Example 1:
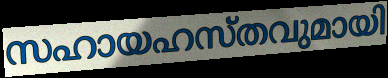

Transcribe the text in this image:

സഹായഹസ്തവുമായി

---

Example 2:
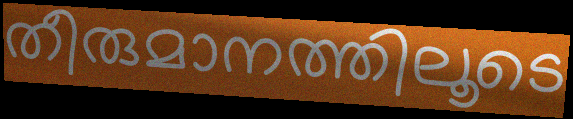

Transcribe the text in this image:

തീരുമാനത്തിലൂടെ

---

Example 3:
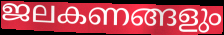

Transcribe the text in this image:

ജലകണങ്ങളും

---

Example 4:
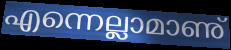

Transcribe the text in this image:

എന്നെല്ലാമാണു്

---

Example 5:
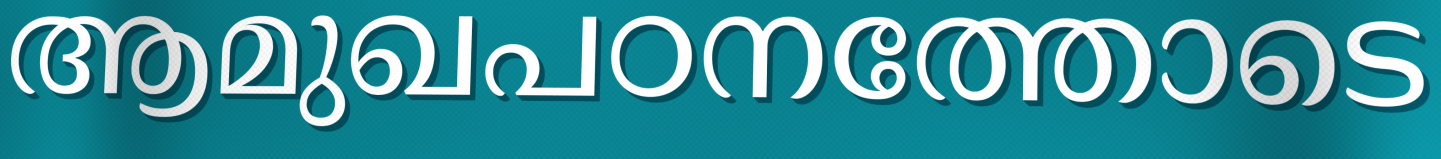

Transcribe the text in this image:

ആമുഖപഠനത്തോടെ